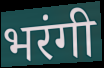
भरंगी